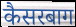
कैसरबाग